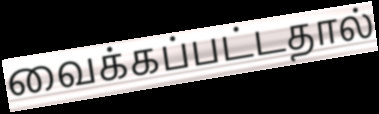
வைக்கப்பட்டதால்